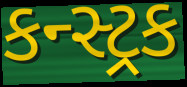
કન્સ્ટ્રક